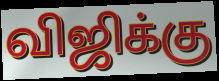
விஜிக்கு